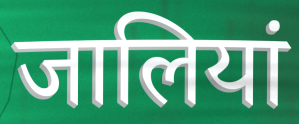
जालियां